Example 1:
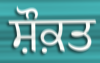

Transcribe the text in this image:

ਸ਼ੌਕ਼ਤ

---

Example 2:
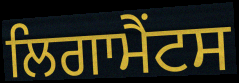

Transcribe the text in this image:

ਲਿਗਾਮੈਂਟਸ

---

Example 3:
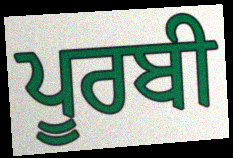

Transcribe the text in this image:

ਪੂਰਬੀ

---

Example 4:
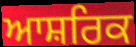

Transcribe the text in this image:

ਆਸ਼ਰਿਕ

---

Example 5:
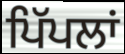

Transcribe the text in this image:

ਪਿੱਪਲਾਂ